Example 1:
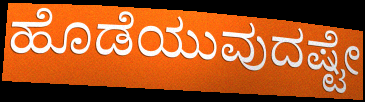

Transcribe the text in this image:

ಹೊಡೆಯುವುದಷ್ಟೇ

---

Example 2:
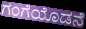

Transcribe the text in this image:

ಗಂಗೆಯೊಡನೆ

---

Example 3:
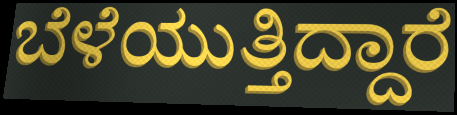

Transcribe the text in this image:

ಬೆಳೆಯುತ್ತಿದ್ದಾರೆ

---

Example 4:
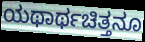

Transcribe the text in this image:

ಯಥಾರ್ಥಚಿತ್ತನೂ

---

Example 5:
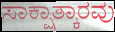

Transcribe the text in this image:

ಸಾಕ್ಷಾತ್ಕಾರವು